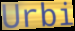
Urbi